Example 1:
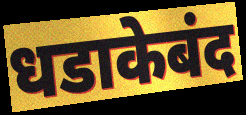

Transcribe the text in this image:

धडाकेबंद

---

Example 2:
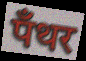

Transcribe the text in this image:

पँथर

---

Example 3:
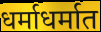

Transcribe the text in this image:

धर्माधर्मात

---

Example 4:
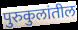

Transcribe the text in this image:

पुरुकुलांतील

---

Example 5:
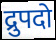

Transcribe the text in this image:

द्रुपदो